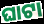
ଘାଟା